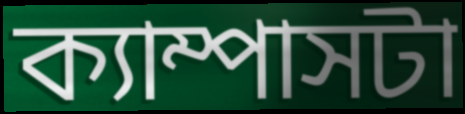
ক্যাম্পাসটা